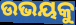
ଉଭୟକୁ